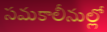
సమకాలీనుల్లో